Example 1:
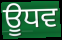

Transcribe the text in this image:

ਊਧਵ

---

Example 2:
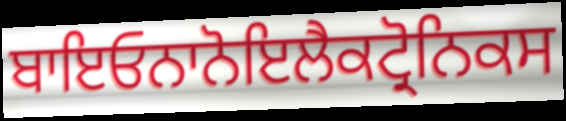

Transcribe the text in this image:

ਬਾਇਓਨਾਨੋਇਲੈਕਟ੍ਰੋਨਿਕਸ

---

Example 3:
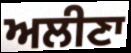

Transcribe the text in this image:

ਅਲੀਣਾ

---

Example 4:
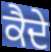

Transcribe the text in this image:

ਕੈਦੇ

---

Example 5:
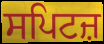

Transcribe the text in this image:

ਸਪਿਟਜ਼